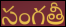
సంగతీ